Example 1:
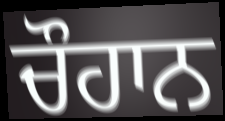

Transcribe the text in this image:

ਚੌਹਾਨ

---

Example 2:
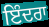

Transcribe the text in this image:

ਇੰਦਰਾ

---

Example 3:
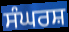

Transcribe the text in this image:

ਸੰਘਰਸ਼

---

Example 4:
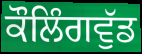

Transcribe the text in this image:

ਕੌਲਿੰਗਵੁੱਡ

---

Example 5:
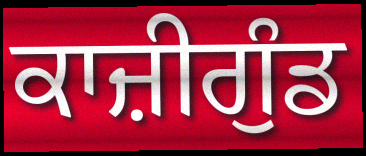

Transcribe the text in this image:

ਕਾਜ਼ੀਗੁੰਡ